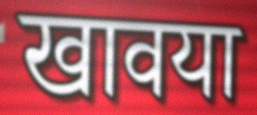
खावया